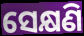
ସେକ୍ଷଣି